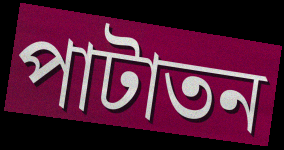
পাটাতন